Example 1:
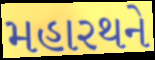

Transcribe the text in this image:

મહારથને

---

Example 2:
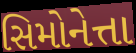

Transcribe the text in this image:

સિમોનેત્તા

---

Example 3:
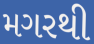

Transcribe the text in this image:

મગરથી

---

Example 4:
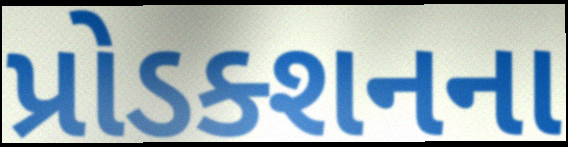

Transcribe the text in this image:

પ્રોડક્શનના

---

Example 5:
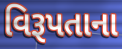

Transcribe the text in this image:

વિરૂપતાના